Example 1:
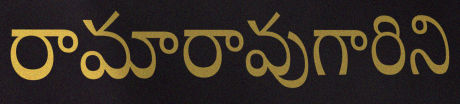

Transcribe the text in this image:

రామారావుగారిని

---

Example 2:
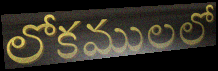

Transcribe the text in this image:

లోకములలో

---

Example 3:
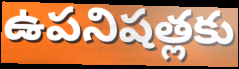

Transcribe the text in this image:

ఉపనిషత్లకు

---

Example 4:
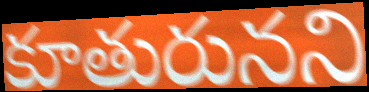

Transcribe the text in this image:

కూతురునని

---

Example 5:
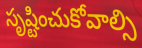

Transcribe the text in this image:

సృష్టించుకోవాల్సి